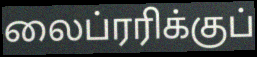
லைப்ரரிக்குப்